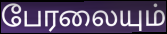
பேரலையும்